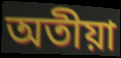
অতীয়া